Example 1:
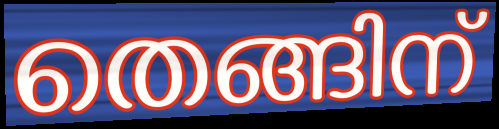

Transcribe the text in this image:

തെങ്ങിന്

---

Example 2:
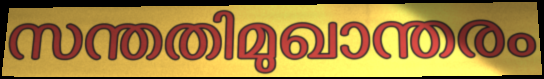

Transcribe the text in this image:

സന്തതിമുഖാന്തരം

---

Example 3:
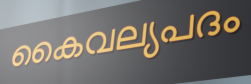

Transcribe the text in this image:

കൈവല്യപദം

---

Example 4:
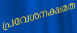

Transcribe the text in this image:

പ്രവേശനക്ഷമത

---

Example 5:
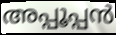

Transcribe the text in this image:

അപ്പൂപ്പൻ